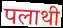
पलाथी